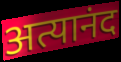
अत्यानंद